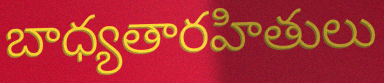
బాధ్యతారహితులు